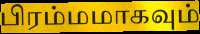
பிரம்மமாகவும்